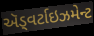
ઍડ્વર્ટાઇઝમેન્ટ